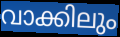
വാക്കിലും